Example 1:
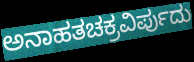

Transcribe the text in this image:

ಅನಾಹತಚಕ್ರವಿರ್ಪುದು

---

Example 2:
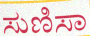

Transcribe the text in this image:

ಸುಣಿಸಾ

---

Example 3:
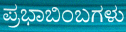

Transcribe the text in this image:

ಪ್ರಭಾಬಿಂಬಗಳು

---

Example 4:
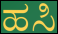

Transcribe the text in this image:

ಹಸಿ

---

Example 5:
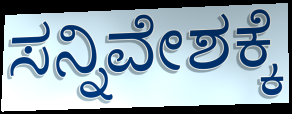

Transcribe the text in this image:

ಸನ್ನಿವೇಶಕ್ಕೆ